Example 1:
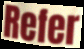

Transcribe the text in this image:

Refer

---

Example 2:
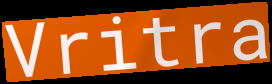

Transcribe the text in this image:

Vritra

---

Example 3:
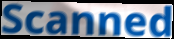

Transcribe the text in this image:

Scanned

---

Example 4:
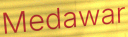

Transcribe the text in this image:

Medawar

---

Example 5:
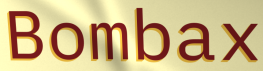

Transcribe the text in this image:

Bombax